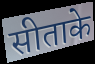
सीताके